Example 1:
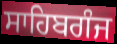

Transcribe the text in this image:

ਸਾਹਿਬਗੰਜ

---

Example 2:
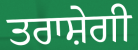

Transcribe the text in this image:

ਤਰਾਸ਼ੇਗੀ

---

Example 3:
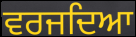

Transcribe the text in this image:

ਵਰਜਦਿਆ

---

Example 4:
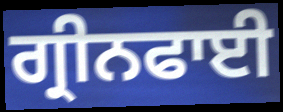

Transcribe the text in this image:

ਗ੍ਰੀਨਫਾਈ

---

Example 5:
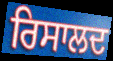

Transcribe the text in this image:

ਰਿਸਾਲਦ